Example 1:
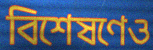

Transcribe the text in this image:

বিশেষণেও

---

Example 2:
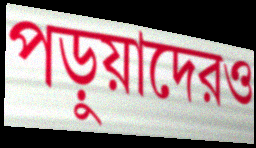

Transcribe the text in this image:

পড়ুয়াদেরও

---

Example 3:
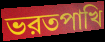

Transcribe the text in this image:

ভরতপাখি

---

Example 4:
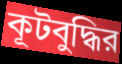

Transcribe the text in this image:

কূটবুদ্ধির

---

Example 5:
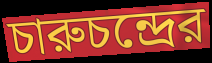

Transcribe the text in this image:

চারুচন্দ্রের